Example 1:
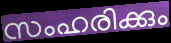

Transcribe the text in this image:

സംഹരിക്കും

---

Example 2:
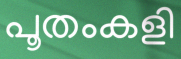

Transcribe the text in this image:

പൂതംകളി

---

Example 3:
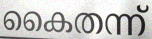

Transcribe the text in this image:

കൈതന്ന്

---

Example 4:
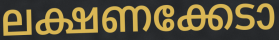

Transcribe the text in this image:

ലക്ഷണക്കേടാ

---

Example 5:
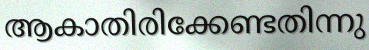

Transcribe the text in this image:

ആകാതിരിക്കേണ്ടതിന്നു